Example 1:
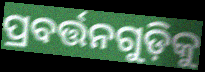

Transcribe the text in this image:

ପ୍ରବର୍ତ୍ତନଗୁଡ଼ିକୁ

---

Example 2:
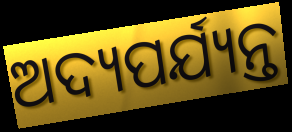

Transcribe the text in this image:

ଅଦ୍ୟପର୍ଯ୍ୟନ୍ତ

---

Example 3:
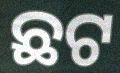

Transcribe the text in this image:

ଛଟ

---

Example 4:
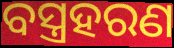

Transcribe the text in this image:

ବସ୍ତ୍ରହରଣ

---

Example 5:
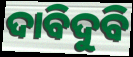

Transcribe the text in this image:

ଦାବିଦୁବି